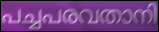
പച്ചപരവതാനി